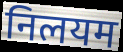
निलयम